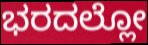
ಭರದಲ್ಲೋ